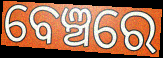
ବେଞ୍ଚରେ